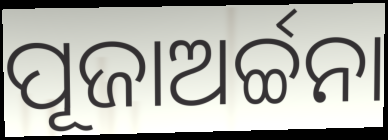
ପୂଜାଅର୍ଚ୍ଚନା